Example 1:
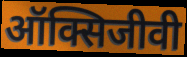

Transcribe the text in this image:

ऑक्सिजीवी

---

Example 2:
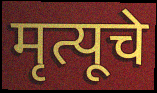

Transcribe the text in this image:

मृत्यूचे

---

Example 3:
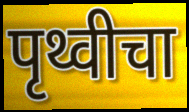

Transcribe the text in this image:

पृथ्वीचा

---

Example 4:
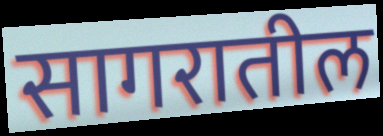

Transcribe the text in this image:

सागरातील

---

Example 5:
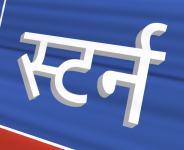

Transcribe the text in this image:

स्टर्न